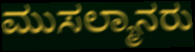
ಮುಸಲ್ಮಾನರು